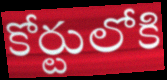
కోర్టులోకి